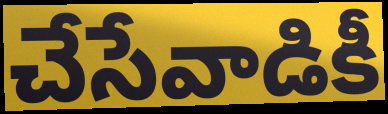
చేసేవాడికీ